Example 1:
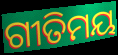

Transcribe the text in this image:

ଗୀତିମୟ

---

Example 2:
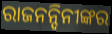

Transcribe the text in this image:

ରାଜନନ୍ଦିନୀଙ୍କର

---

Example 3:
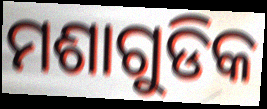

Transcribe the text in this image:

ମଶାଗୁଡିକ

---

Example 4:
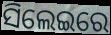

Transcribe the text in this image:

ସିଲେଇରେ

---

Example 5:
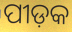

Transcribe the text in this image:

ପୀଡ଼କ